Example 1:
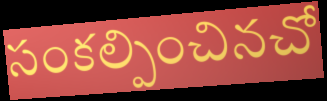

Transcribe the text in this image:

సంకల్పించినచో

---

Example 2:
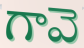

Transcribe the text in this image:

గావె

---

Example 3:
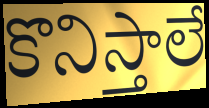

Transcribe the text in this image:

కొనిస్తాలే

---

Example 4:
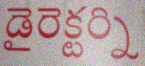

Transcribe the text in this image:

డైరెక్టర్ని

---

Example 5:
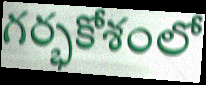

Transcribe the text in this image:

గర్భకోశంలో